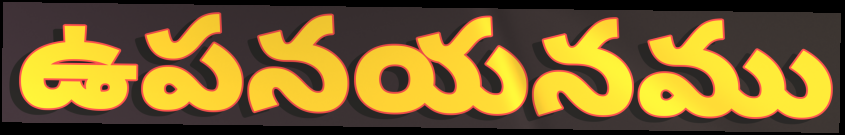
ఉపనయనము